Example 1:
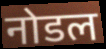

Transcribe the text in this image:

नोडल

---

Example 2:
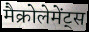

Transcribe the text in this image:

मैक्रोलेमेंट्स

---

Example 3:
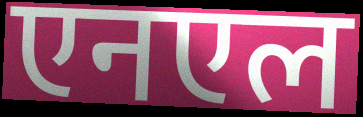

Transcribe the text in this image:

एनएल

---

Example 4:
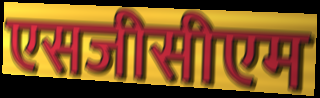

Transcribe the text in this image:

एसजीसीएम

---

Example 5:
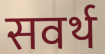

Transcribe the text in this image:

सवर्थ